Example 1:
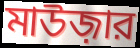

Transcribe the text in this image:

মাউজ়ার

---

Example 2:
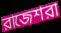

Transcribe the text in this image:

রাজেশরা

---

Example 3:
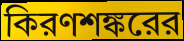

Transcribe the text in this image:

কিরণশঙ্করের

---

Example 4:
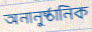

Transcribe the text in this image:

অনানুষ্ঠানিক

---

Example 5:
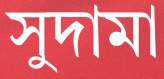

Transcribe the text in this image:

সুদামা